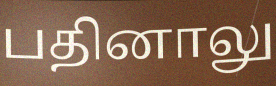
பதினாலு